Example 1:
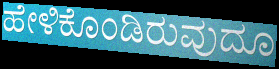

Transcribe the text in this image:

ಹೇಳಿಕೊಂಡಿರುವುದೂ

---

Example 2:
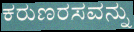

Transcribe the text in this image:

ಕರುಣರಸವನ್ನು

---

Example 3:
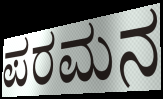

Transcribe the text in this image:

ಪರಮನ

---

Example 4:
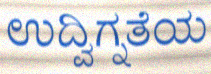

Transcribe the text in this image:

ಉದ್ವಿಗ್ನತೆಯ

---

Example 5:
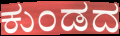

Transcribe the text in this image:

ಕುಂಡದ